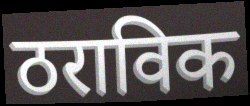
ठराविक